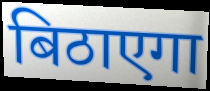
बिठाएगा